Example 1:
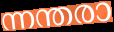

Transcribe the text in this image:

ന്നന്തരാ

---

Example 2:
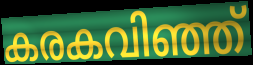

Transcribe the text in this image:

കരകവിഞ്ഞ്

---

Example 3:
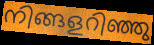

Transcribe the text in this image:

നിങ്ങളറിഞ്ഞു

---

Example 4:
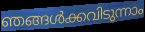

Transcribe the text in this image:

ഞങ്ങൾക്കവിടുന്നാം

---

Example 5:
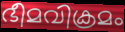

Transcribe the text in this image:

ഭീമവിക്രമം